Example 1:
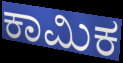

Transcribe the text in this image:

ಕಾಮಿಕ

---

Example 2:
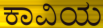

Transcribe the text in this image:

ಕಾವಿಯ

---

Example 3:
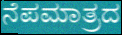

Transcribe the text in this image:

ನೆಪಮಾತ್ರದ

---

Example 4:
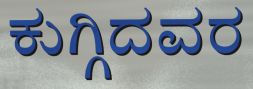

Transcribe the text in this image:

ಕುಗ್ಗಿದವರ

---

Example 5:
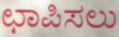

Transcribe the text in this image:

ಛಾಪಿಸಲು